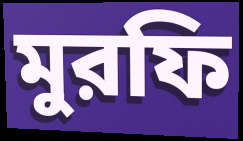
মুরফি